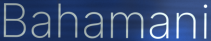
Bahamani